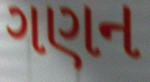
ગણન